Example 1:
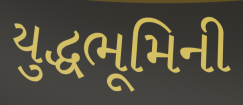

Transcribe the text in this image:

યુદ્ધભૂમિની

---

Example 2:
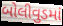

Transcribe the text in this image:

બોલીવુડમાં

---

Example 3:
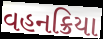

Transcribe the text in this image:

વહનક્રિયા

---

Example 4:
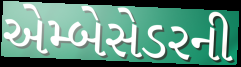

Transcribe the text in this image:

એમ્બેસેડરની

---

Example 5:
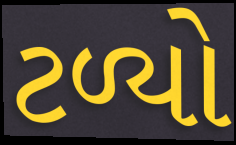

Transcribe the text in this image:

ટળ્યો